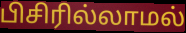
பிசிரில்லாமல்